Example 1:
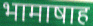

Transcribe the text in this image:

भामाषाह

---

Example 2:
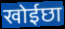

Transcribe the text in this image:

खोईछा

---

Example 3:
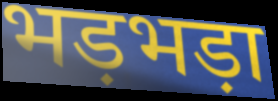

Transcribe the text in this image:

भड़भड़ा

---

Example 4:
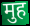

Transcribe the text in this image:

मुह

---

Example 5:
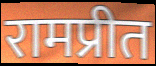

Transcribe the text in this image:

रामप्रीत